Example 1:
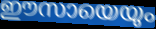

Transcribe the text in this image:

ഈസായെയും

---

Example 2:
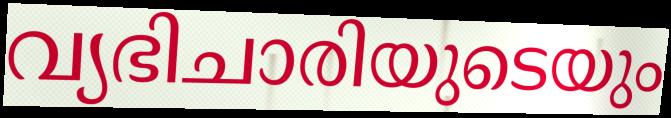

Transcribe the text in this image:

വ്യഭിചാരിയുടെയും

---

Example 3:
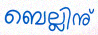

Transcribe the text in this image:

ബെല്ലിനു്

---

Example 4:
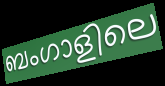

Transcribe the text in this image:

ബംഗാളിലെ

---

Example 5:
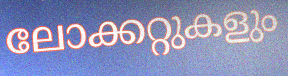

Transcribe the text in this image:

ലോക്കറ്റുകളും